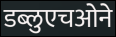
डब्लुएचओने